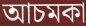
আচমকা